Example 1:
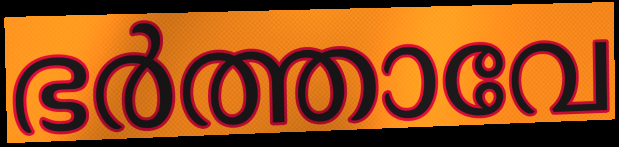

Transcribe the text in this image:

ഭർത്താവേ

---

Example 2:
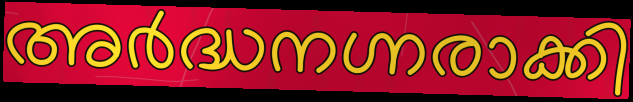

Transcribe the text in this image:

അർദ്ധനഗ്നരാക്കി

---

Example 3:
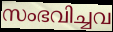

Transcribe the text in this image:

സംഭവിച്ചവ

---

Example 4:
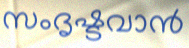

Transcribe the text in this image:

സംദൃഷ്ടവാൻ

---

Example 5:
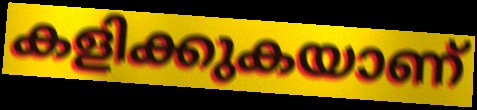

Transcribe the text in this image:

കളിക്കുകയാണ്